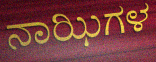
ನಾಝಿಗಳ